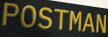
POSTMAN